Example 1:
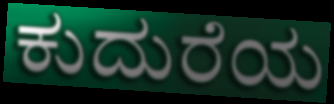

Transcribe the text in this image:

ಕುದುರೆಯ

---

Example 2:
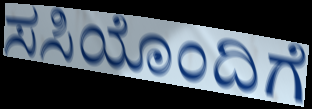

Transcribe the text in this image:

ಸಸಿಯೊಂದಿಗೆ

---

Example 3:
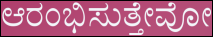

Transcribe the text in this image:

ಆರಂಭಿಸುತ್ತೇವೋ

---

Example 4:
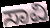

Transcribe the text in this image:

ಸಾವಿ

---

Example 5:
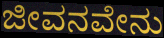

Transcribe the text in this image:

ಜೀವನವೇನು